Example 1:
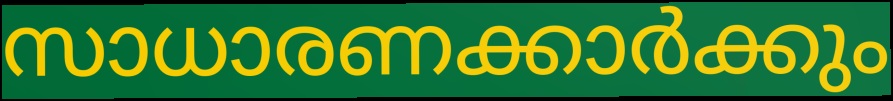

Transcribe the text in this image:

സാധാരണക്കാർക്കും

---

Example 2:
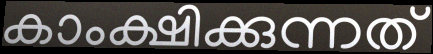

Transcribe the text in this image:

കാംക്ഷിക്കുന്നത്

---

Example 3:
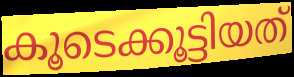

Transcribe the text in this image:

കൂടെക്കൂട്ടിയത്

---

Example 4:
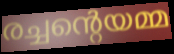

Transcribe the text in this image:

രച്ചന്റെയമ്മ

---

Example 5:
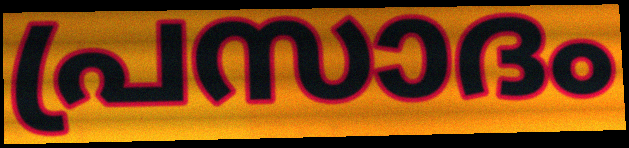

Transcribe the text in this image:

പ്രസാദം